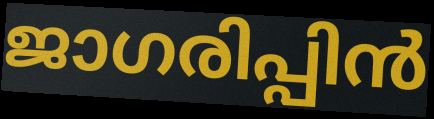
ജാഗരിപ്പിൻ